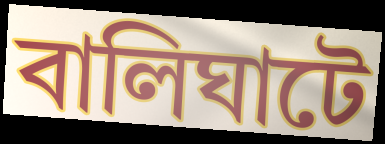
বালিঘাটে